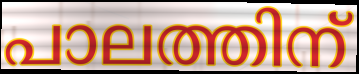
പാലത്തിന്